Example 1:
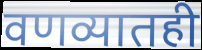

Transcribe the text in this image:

वणव्यातही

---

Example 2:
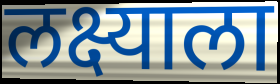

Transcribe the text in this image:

लक्ष्याला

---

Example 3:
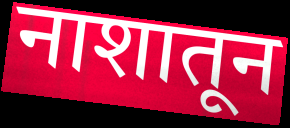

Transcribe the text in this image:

नाशातून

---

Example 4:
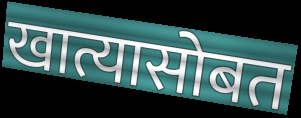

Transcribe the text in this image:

खात्यासोबत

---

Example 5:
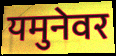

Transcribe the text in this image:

यमुनेवर